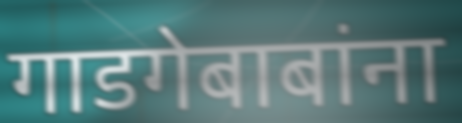
गाडगेबाबांना